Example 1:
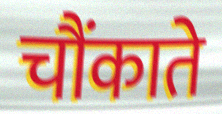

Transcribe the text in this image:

चौंकाते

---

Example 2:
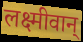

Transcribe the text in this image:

लक्ष्मीवान्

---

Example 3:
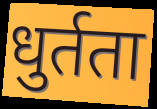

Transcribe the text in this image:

धुर्तता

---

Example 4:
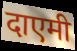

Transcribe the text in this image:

दाएमी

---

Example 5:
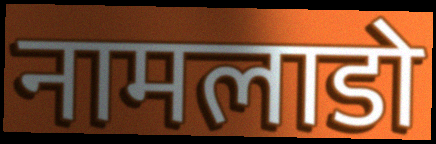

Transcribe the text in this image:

नामलाडो